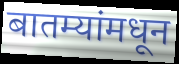
बातम्यांमधून